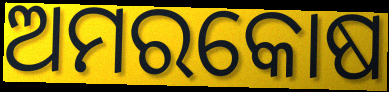
ଅମରକୋଷ